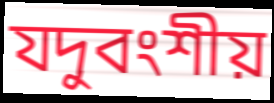
যদুবংশীয়